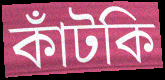
কাঁটকি